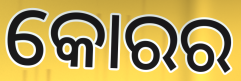
କୋରର